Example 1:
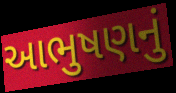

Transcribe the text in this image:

આભુષણનું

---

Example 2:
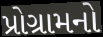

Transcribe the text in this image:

પ્રોગ્રામનો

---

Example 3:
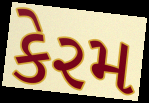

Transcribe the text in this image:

કેરમ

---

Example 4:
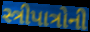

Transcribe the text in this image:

સ્ત્રીપાત્રોની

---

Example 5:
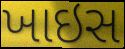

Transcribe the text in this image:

ખાઇસ